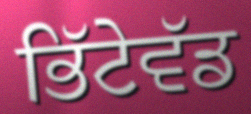
ਭਿੱਟੇਵੱਡ